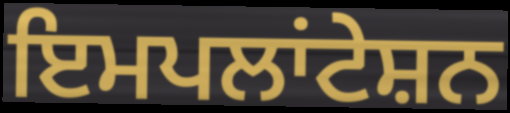
ਇਮਪਲਾਂਟੇਸ਼ਨ